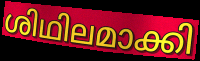
ശിഥിലമാക്കി